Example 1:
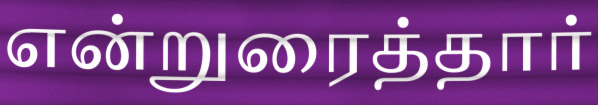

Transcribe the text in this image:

என்றுரைத்தார்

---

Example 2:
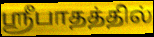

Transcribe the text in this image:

ஸ்ரீபாதத்தில்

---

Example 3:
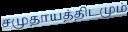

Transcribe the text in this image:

சமுதாயத்திடமும்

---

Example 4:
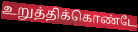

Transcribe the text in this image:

உறுத்திக்கொண்டே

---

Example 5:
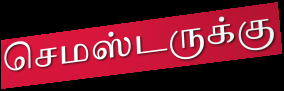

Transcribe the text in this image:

செமஸ்டருக்கு